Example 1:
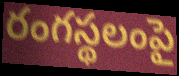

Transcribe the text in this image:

రంగస్థలంపై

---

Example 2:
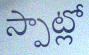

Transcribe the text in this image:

స్పాట్లో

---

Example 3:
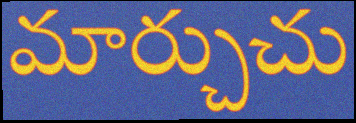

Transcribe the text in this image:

మార్చుచు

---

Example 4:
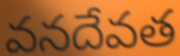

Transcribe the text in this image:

వనదేవత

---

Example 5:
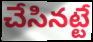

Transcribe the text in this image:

చేసినట్టే